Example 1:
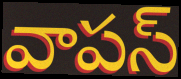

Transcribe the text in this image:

వాపస్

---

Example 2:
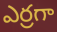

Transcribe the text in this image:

ఎర్రగా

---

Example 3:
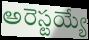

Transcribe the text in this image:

అరెస్టయ్యే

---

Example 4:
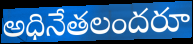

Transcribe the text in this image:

అధినేతలందరూ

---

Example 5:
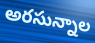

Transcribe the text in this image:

అరసున్నాల